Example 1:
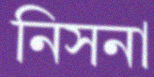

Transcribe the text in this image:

নিসনা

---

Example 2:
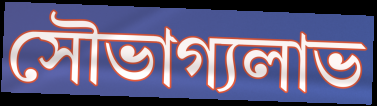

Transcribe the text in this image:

সৌভাগ্যলাভ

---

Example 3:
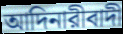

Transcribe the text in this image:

আদিনারীবাদী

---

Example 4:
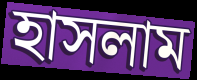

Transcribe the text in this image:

হাসলাম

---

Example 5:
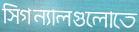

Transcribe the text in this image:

সিগন্যালগুলোতে